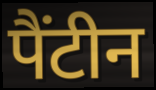
पैंटीन